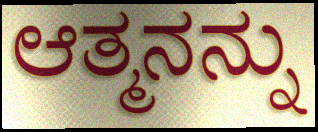
ಆತ್ಮನನ್ನು